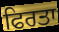
ਫਿਰਤਾ